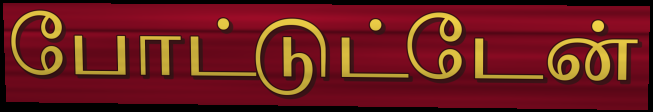
போட்டுட்டேன்